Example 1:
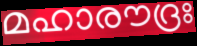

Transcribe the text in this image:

മഹാരൗദ്രഃ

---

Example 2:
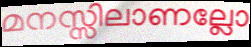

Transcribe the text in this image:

മനസ്സിലാണല്ലോ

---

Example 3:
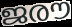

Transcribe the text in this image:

ജരൗ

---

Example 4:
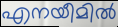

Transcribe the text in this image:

എനയീമിൽ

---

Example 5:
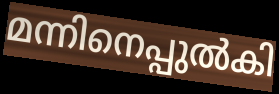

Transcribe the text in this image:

മന്നിനെപ്പുൽകി